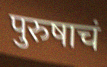
पुरुषाचं